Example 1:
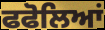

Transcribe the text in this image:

ਫਫੋਲਿਆਂ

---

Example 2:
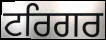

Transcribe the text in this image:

ਟਰਿਗਰ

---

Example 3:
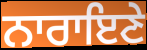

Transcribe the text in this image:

ਨਾਰਾਇਣੇ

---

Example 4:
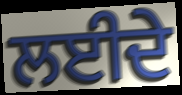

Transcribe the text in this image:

ਲਈਦੇ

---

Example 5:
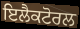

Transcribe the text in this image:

ਇਲੈਕਟੋਰਲ